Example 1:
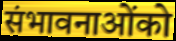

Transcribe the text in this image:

संभावनाओंको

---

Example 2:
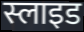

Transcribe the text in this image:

स्‍लाइड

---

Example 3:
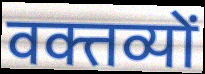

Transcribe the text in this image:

वक्तव्यों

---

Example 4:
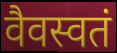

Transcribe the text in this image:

वैवस्वतं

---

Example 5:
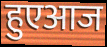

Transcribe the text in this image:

हुएआज